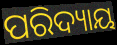
ପରିଦ୍ୟାୟ